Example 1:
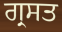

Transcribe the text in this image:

ਗ੍ਰਸਤ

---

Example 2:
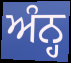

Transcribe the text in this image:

ਅੰਨ੍ਹ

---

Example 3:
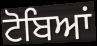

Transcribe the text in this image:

ਟੋਬਿਆਂ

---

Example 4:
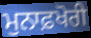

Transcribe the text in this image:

ਮੁਨਾਫ਼ਖੋਰੀ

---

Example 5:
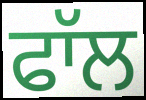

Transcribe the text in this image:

ਫਾੱਲ